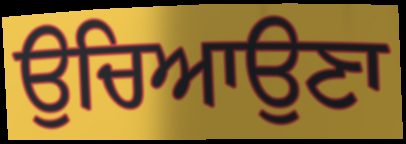
ਉਚਿਆਉਣਾ